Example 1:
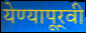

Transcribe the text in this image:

येण्यापूर्वी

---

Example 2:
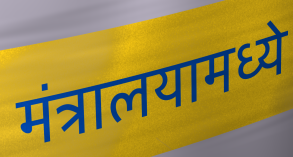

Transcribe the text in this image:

मंत्रालयामध्ये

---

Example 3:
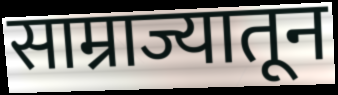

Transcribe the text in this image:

साम्राज्यातून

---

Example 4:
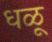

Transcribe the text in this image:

धळू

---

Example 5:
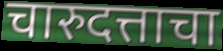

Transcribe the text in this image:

चारुदत्ताचा